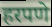
हरपणे